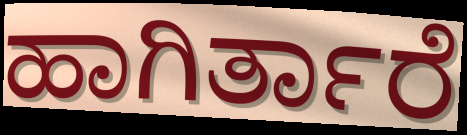
ಹಾಗಿರ್ತಾರೆ